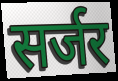
सर्जर